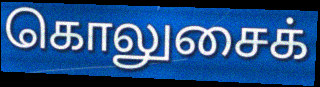
கொலுசைக்